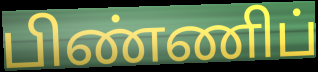
பிண்ணிப்